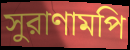
সুরাণামপি